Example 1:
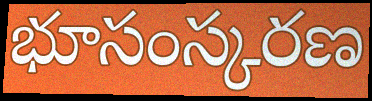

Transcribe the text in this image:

భూసంస్కరణ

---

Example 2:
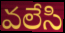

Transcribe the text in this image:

వలేసి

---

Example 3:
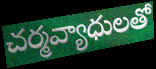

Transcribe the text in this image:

చర్మవ్యాధులతో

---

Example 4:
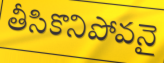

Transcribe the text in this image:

తీసికొనిపోవనై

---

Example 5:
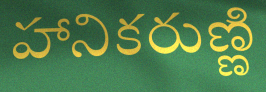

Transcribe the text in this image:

హానికరుణ్ణి